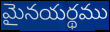
మైనయర్థము